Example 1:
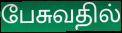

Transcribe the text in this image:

பேசுவதில்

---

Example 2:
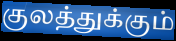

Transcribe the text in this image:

குலத்துக்கும்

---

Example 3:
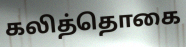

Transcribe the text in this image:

கலித்தொகை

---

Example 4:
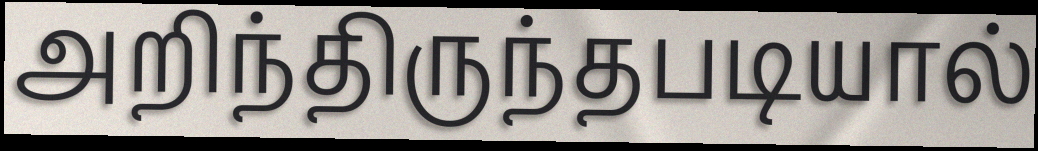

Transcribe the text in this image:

அறிந்திருந்தபடியால்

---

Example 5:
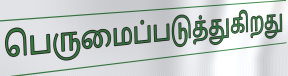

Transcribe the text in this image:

பெருமைப்படுத்துகிறது